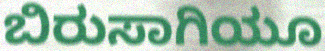
ಬಿರುಸಾಗಿಯೂ